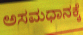
ಅಸಮಧಾನಕ್ಕೆ